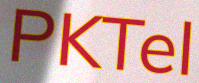
PKTel